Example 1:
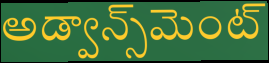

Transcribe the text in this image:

అడ్వాన్స్‌మెంట్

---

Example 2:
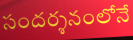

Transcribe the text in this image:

సందర్శనంలోనే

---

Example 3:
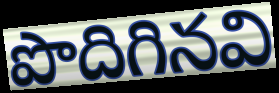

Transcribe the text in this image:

పొదిగినవి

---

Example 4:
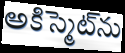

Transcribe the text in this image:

అకిస్మెట్‌ను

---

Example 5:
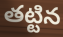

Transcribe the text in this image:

తట్టిన